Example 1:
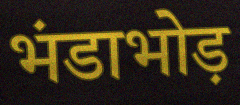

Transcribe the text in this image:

भंडाभोड़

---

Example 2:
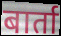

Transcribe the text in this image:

बार्ता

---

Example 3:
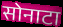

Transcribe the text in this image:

सोनाटा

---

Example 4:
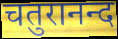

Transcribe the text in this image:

चतुरानन्द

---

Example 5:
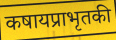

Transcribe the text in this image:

कषायप्राभृतकी